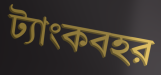
ট্যাংকবহর